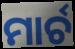
ମାର୍ଚ